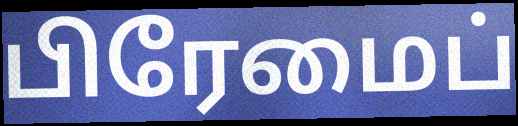
பிரேமைப்